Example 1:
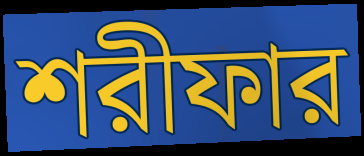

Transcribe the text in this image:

শরীফার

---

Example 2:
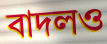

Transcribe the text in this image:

বাদলও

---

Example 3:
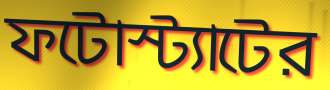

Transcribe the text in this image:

ফটোস্ট্যাটের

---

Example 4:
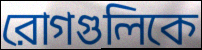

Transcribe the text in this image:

রোগগুলিকে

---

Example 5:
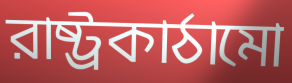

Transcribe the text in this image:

রাষ্ট্রকাঠামো